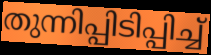
തുന്നിപ്പിടിപ്പിച്ച്